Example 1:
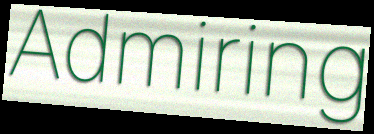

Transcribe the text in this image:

Admiring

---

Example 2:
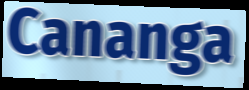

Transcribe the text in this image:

Cananga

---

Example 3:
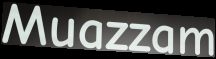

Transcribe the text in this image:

Muazzam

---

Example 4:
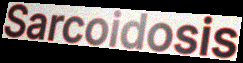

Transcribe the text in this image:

Sarcoidosis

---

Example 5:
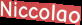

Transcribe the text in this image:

Niccolao